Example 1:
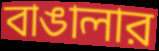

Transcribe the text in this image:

বাঙালার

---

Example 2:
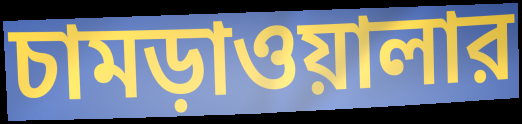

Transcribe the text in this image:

চামড়াওয়ালার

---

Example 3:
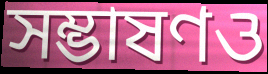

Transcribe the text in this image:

সম্ভাষণও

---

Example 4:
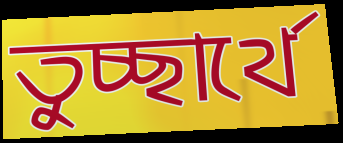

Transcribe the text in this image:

তুচ্ছার্থে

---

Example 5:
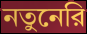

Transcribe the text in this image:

নতুনেরি